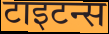
टाइटन्स